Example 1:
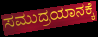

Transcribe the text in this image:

ಸಮುದ್ರಯಾನಕ್ಕೆ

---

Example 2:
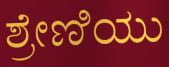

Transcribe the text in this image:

ಶ್ರೇಣಿಯು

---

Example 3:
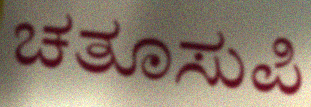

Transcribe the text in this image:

ಚತೂಸುಪಿ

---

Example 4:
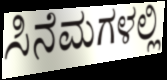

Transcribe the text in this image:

ಸಿನೆಮಗಳಲ್ಲಿ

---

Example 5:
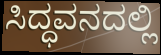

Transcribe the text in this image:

ಸಿದ್ಧವನದಲ್ಲಿ